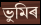
ভুমিৰ